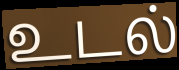
உடல்